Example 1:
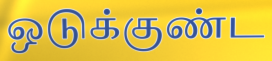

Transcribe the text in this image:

ஒடுக்குண்ட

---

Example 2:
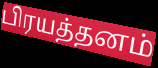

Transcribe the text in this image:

பிரயத்தனம்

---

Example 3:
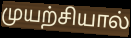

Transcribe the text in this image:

முயற்சியால்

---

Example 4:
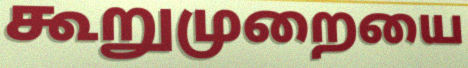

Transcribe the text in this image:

கூறுமுறையை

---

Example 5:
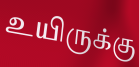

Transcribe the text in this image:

உயிருக்கு